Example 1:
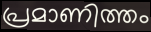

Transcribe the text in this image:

പ്രമാണിത്തം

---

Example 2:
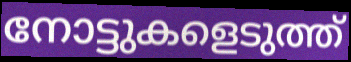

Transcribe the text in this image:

നോട്ടുകളെടുത്ത്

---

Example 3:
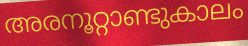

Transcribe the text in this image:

അരനൂറ്റാണ്ടുകാലം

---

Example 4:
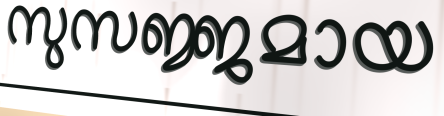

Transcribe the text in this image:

സുസജ്ജമായ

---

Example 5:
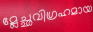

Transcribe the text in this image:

മ്ലേച്ഛവിഗ്രഹമായ